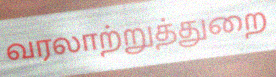
வரலாற்றுத்துறை